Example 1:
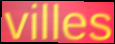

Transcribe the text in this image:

villes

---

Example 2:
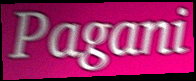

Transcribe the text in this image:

Pagani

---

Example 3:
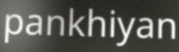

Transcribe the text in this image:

pankhiyan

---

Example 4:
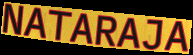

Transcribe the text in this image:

NATARAJA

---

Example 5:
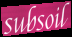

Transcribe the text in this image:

subsoil